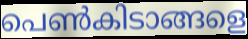
പെൺകിടാങ്ങളെ